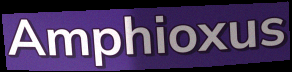
Amphioxus